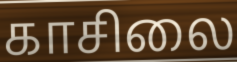
காசிலை